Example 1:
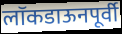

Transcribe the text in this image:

लॉकडाऊनपूर्वी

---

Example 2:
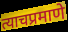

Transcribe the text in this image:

त्याचप्रमाणे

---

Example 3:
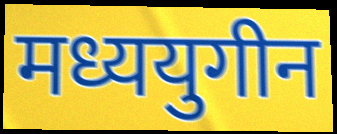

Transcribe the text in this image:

मध्ययुगीन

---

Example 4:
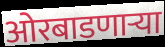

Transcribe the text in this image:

ओरबाडणाऱ्या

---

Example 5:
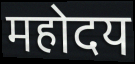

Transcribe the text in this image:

महोदय